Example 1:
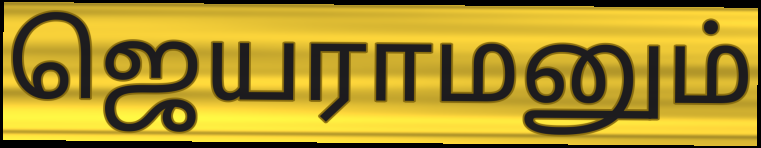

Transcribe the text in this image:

ஜெயராமனும்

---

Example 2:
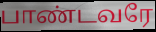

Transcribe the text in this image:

பாண்டவரே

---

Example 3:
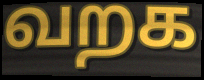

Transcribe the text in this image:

வறக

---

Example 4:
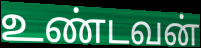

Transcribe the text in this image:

உண்டவன்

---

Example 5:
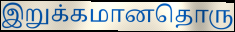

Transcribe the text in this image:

இறுக்கமானதொரு